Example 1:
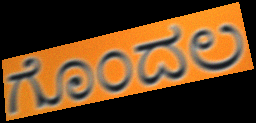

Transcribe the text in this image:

ಗೊಂದಲ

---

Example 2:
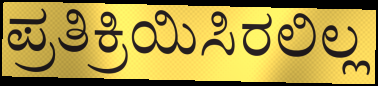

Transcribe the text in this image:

ಪ್ರತಿಕ್ರಿಯಿಸಿರಲಿಲ್ಲ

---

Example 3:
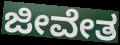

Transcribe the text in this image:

ಜೀವೇತ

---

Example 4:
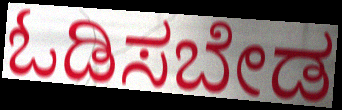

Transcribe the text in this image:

ಓಡಿಸಬೇಡ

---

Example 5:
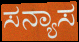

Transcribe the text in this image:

ಸನ್ಯಾಸ